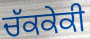
ਚੱਕਕੇਕੀ